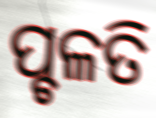
ପ୍ଚଳତି